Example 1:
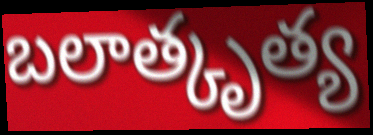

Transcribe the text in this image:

బలాత్కృత్య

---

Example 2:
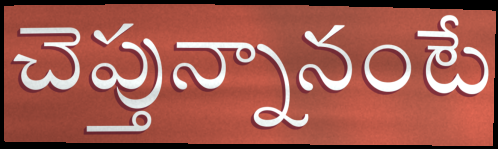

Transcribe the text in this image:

చెప్తున్నానంటే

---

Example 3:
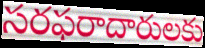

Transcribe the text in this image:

సరఫరాదారులకు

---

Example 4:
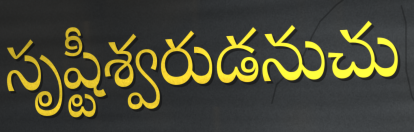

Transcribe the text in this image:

సృష్టీశ్వరుడనుచు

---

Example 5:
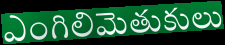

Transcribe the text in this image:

ఎంగిలిమెతుకులు